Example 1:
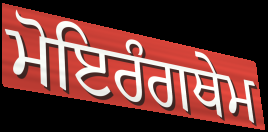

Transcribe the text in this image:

ਮੋਇਰੰਗਥੇਮ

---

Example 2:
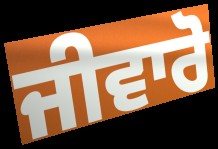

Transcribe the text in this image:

ਜੀਵਾਰੋ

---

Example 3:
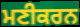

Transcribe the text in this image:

ਮਣੀਕਰਨ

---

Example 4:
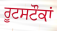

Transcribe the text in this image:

ਰੂਟਸਟੌਕਾਂ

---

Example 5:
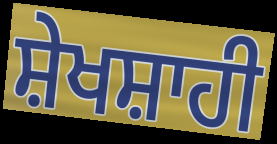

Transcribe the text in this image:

ਸ਼ੇਖਸ਼ਾਹੀ